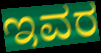
ಇವರ